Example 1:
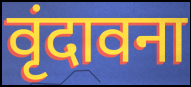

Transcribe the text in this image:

वृंदावना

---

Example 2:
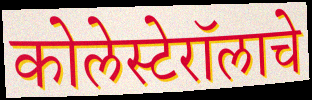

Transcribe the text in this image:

कोलेस्टेरॉलाचे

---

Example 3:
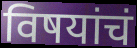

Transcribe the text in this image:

विषयांचं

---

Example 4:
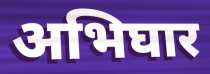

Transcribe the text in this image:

अभिघार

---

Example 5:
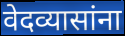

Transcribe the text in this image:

वेदव्यासांना